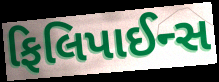
ફિલિપાઈન્સ